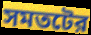
সমতটের